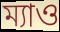
ম্যাও